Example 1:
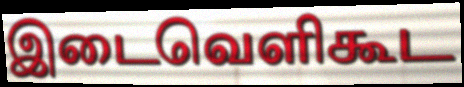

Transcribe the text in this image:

இடைவெளிகூட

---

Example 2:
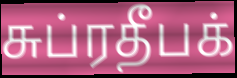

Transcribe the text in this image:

சுப்ரதீபக்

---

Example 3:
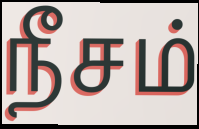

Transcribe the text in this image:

நீசம்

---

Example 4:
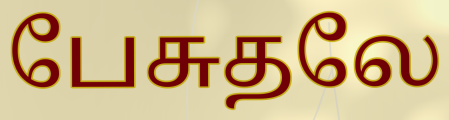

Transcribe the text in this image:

பேசுதலே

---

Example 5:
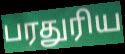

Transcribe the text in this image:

பரதுரிய